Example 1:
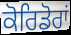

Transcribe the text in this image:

ਕੋਰਿਡੋਰਾਂ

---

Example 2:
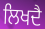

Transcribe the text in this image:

ਲਿਖਦੈ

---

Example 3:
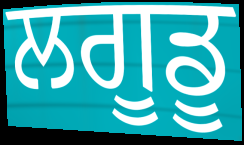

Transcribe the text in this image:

ਲਗੂਡੂ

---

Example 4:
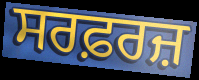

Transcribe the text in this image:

ਸਰਫ਼ਰਜ਼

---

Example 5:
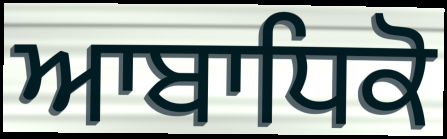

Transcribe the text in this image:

ਆਬਾਧਿਕੋ